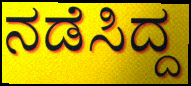
ನಡೆಸಿದ್ದ